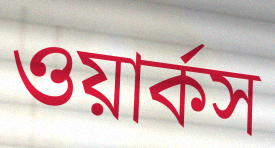
ওয়ার্কস